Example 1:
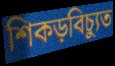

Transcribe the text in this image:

শিকড়বিচ্যুত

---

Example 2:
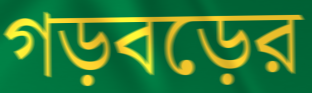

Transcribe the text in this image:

গড়বড়ের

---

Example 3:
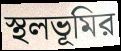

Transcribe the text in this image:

স্থলভূমির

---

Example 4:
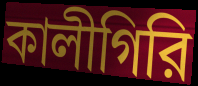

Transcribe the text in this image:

কালীগিরি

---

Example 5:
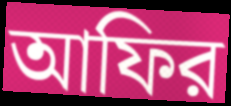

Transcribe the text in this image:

আফির